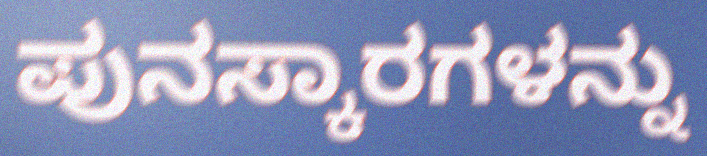
ಪುನಸ್ಕಾರಗಳನ್ನು